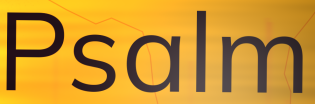
Psalm